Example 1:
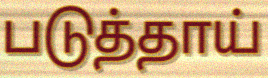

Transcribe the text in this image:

படுத்தாய்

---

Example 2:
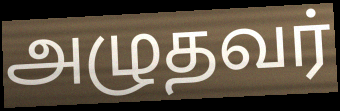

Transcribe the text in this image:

அழுதவர்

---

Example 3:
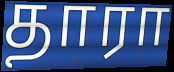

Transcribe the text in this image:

தாரா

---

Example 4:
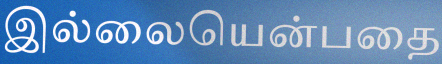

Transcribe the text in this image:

இல்லையென்பதை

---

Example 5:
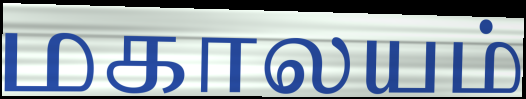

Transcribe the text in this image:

மகாலயம்